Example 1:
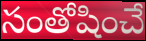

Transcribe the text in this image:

సంతోషించే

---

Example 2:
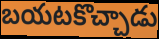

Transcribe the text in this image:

బయటకొచ్చాడు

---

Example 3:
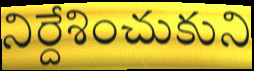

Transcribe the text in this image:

నిర్దేశించుకుని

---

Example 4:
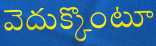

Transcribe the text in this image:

వెదుక్కొంటూ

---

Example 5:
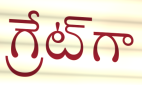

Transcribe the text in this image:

గ్రేట్‌గా